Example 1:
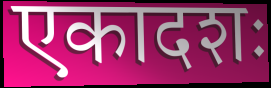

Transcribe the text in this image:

एकादशः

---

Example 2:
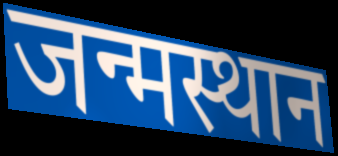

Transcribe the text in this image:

जन्मस्थान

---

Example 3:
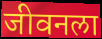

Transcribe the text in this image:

जीवनला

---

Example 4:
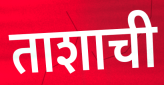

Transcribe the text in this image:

ताशाची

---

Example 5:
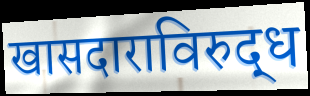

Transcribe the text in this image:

खासदाराविरुद्ध